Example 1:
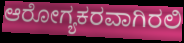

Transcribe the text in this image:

ಆರೋಗ್ಯಕರವಾಗಿರಲಿ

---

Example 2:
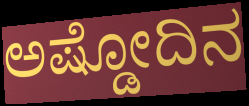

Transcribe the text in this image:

ಅಷ್ಡೋದಿನ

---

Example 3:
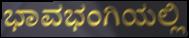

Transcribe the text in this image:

ಭಾವಭಂಗಿಯಲ್ಲಿ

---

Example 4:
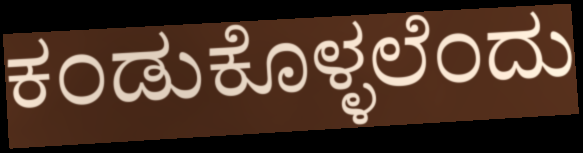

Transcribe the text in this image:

ಕಂಡುಕೊಳ್ಳಲೆಂದು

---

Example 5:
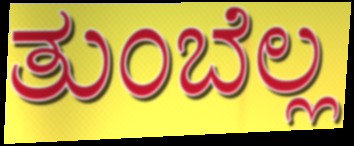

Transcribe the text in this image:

ತುಂಬೆಲ್ಲ